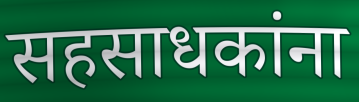
सहसाधकांना